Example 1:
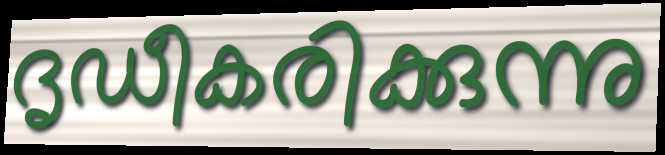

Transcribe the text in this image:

ദൃഡീകരിക്കുന്നു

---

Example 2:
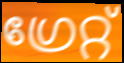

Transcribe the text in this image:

ഗ്രേറ്റ്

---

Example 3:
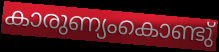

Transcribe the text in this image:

കാരുണ്യംകൊണ്ടു്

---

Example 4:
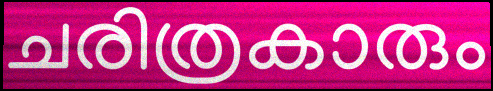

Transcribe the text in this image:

ചരിത്രകാരും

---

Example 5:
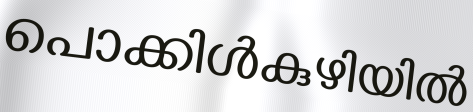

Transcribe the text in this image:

പൊക്കിൾകുഴിയിൽ